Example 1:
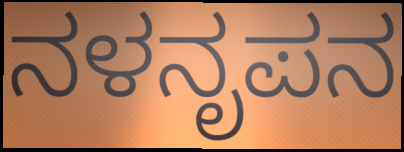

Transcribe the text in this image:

ನಳನೃಪನ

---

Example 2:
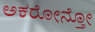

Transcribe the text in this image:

ಅಕರೋನ್ತೋ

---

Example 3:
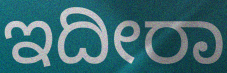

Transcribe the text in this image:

ಇದೀರಾ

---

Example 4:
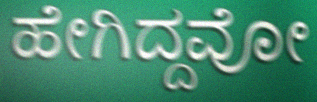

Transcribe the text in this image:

ಹೇಗಿದ್ದವೋ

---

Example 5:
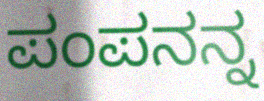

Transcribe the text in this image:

ಪಂಪನನ್ನ